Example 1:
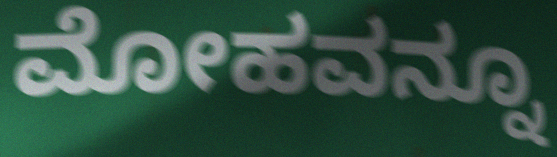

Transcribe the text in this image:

ಮೋಹವನ್ನೂ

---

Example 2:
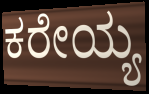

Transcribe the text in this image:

ಕರೇಯ್ಯ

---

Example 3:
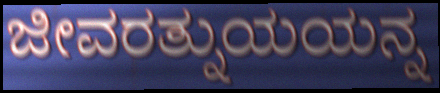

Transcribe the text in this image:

ಜೀವರತ್ನುಯಯನ್ನ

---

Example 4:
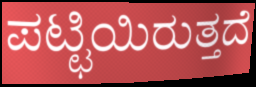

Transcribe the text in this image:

ಪಟ್ಟಿಯಿರುತ್ತದೆ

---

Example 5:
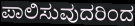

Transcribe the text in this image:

ಪಾಲಿಸುವುದರಿಂದ